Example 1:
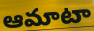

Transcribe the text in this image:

ఆమాటా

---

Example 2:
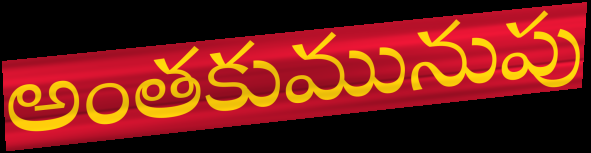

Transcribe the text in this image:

అంతకుమునుపు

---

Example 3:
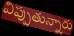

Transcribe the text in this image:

విప్పుతున్నారు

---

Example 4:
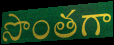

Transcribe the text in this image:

సొంతగా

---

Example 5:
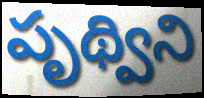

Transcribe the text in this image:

పృథ్విని